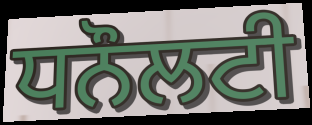
ਧਨੌਲਟੀ